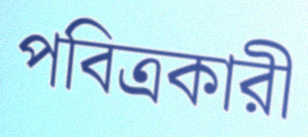
পবিত্রকারী